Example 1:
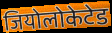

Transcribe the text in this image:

जियोलोकेटेड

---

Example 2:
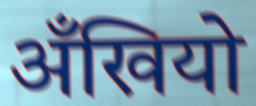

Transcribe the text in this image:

अँखियो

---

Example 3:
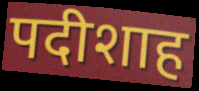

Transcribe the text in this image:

पदीशाह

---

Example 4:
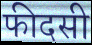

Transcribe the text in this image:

फीदसी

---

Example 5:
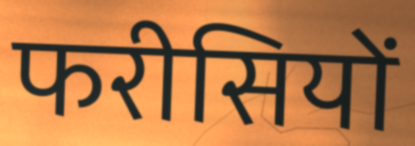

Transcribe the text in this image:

फरीसियों